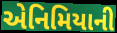
એનિમિયાની